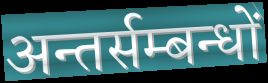
अन्तर्सम्बन्धों